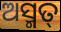
ଅସ୍ମତ୍